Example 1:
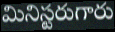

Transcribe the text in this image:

మినిస్టరుగారు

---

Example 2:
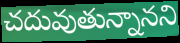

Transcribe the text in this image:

చదువుతున్నానని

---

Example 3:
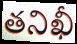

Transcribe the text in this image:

తనిఖీ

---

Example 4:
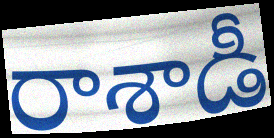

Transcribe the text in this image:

రాశాడీ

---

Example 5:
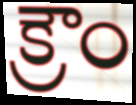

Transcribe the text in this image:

క్రౌం